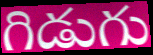
గిడుగు